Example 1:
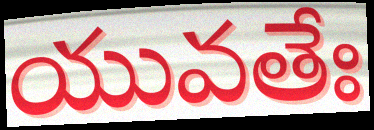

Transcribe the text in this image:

యువతేః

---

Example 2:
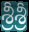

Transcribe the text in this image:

శ్రీశ్రీ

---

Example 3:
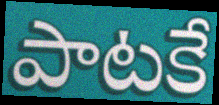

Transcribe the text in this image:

పాటకే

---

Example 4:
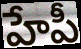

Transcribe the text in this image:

హేపీ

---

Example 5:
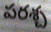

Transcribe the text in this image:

పరశ్చ